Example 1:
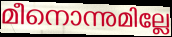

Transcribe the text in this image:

മീനൊന്നുമില്ലേ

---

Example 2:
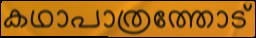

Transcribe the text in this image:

കഥാപാത്രത്തോട്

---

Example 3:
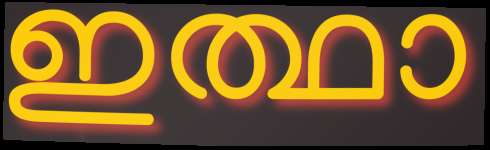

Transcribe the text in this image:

ഇത്ഥാ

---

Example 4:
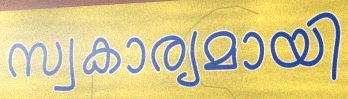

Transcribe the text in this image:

സ്വകാര്യമായി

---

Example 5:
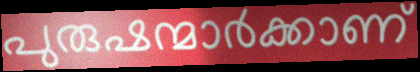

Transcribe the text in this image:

പുരുഷന്മാർക്കാണ്